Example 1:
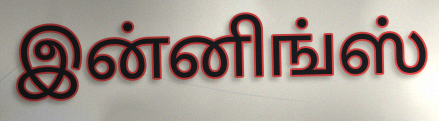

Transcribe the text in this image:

இன்னிங்ஸ்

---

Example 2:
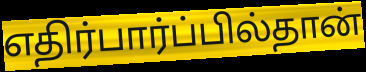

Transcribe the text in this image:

எதிர்பார்ப்பில்தான்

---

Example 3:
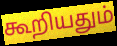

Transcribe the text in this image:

கூறியதும்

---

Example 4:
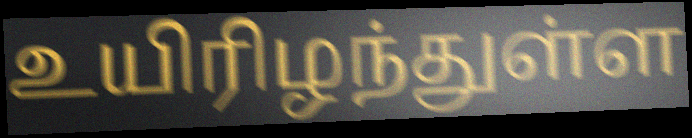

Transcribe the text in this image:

உயிரிழந்துள்ள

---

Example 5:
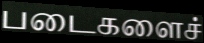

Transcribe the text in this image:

படைகளைச்